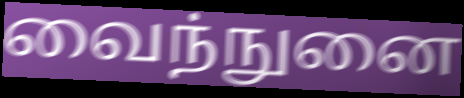
வைந்நுனை